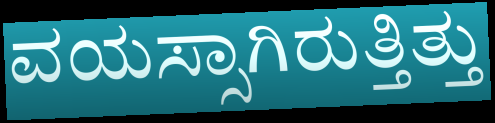
ವಯಸ್ಸಾಗಿರುತ್ತಿತ್ತು